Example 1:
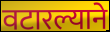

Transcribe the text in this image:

वटारल्याने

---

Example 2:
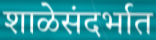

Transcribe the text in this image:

शाळेसंदर्भात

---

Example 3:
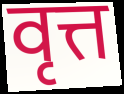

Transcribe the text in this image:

वृत्त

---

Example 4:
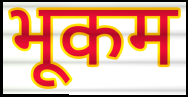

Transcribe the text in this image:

भूकम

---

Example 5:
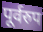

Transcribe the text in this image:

पूर्वरुप